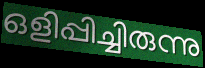
ഒളിപ്പിച്ചിരുന്നു